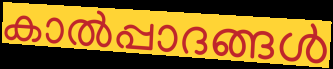
കാൽപ്പാദങ്ങൾ